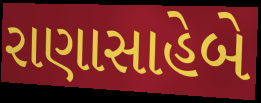
રાણાસાહેબે